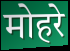
मोहरे